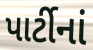
પાર્ટીનાં